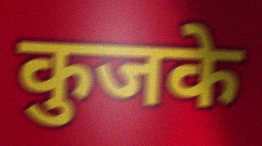
कुजके